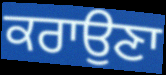
ਕਰਾਉਣਾ